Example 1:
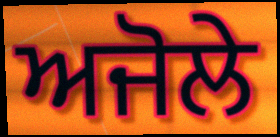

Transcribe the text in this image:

ਅਜੋਲੇ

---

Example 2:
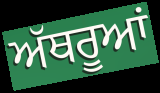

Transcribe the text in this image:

ਅੱਥਰੂਆਂ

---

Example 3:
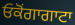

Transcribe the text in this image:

ਓਕੋਂਗਾਗਾਟਾ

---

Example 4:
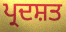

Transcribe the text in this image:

ਪ੍ਰਦਸ਼ਤ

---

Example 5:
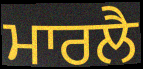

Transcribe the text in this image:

ਮਾਰਲੈ